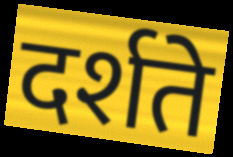
दर्शते